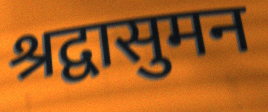
श्रद्वासुमन